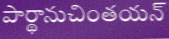
పార్థానుచింతయన్